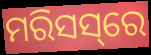
ମରିସସ୍‌ରେ